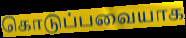
கொடுப்பவையாக